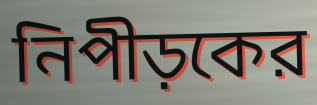
নিপীড়কের